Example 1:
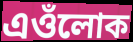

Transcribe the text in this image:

এওঁলোক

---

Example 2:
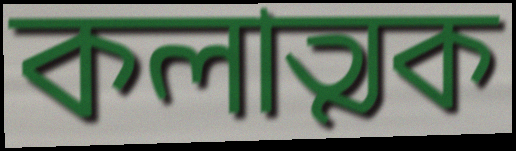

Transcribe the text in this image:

কলাত্মক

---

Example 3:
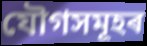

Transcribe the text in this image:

যৌগসমূহৰ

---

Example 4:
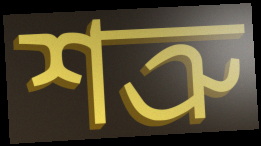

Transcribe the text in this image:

শত্ৰু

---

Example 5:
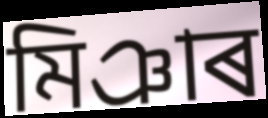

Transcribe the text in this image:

মিঞাৰ